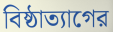
বিষ্ঠাত্যাগের